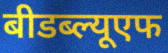
बीडब्ल्यूएफ